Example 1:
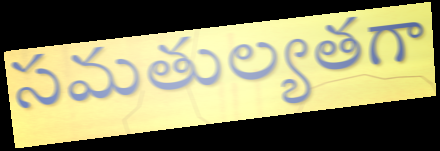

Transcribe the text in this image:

సమతుల్యతగా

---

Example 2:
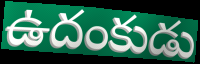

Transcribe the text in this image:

ఉదంకుడు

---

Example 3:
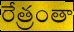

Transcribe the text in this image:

రేత్రంతా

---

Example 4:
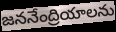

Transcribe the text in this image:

జననేంద్రియాలను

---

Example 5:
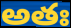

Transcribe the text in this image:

అతః